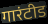
गारंटीड